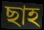
ছাহ